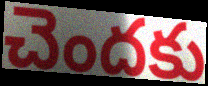
చెందకు